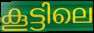
കൂട്ടിലെ